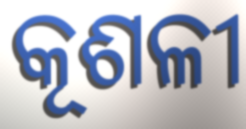
କୂଶଳୀ